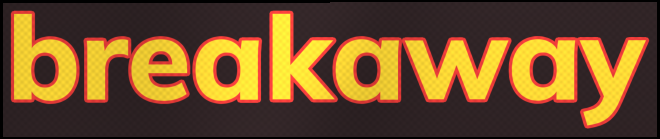
breakaway